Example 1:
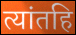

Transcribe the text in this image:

त्यांतहि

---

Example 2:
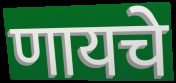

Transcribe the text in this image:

णायचे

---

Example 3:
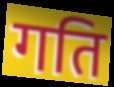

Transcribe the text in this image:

गति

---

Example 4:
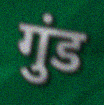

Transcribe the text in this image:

गुंड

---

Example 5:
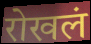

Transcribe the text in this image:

रोखलं